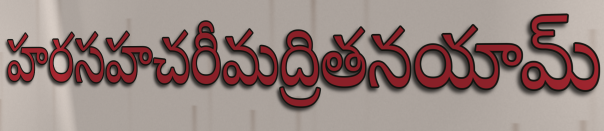
హరసహచరీమద్రితనయామ్